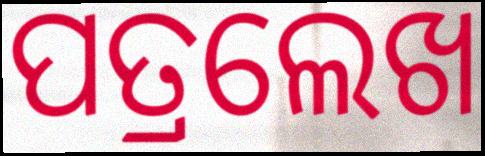
ପତ୍ରଲେଖ